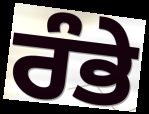
ਰੰਭੇ